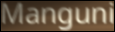
Manguni